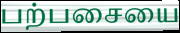
பற்பசையை